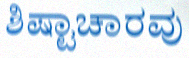
ಶಿಷ್ಟಾಚಾರವು